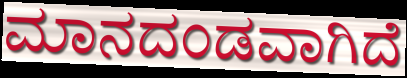
ಮಾನದಂಡವಾಗಿದೆ